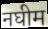
नघीम